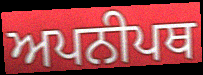
ਅਪਨੀਪਥ